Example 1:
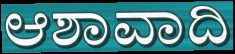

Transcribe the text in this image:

ಆಶಾವಾದಿ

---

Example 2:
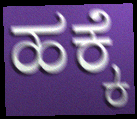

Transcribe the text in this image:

ಹಕ್ಕೆ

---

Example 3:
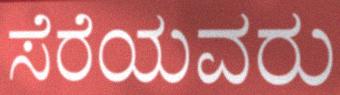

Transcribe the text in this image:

ಸೆರೆಯವರು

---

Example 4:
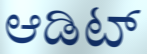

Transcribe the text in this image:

ಆಡಿಟ್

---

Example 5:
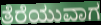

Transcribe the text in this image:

ತೆರೆಯುವಾಗ